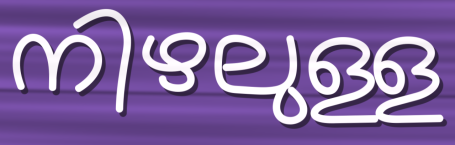
നിഴലുള്ള